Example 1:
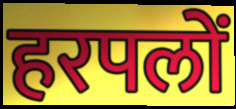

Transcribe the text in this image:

हरपलों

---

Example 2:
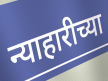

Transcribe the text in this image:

न्याहारीच्या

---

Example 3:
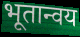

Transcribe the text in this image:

भूतान्वय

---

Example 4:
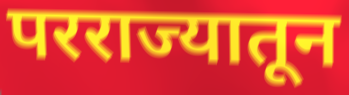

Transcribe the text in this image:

परराज्यातून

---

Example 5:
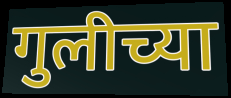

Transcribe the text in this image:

गुलीच्या